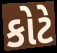
કોટે